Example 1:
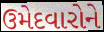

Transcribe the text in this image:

ઉમેદવારોને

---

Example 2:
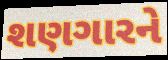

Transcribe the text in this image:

શણગારને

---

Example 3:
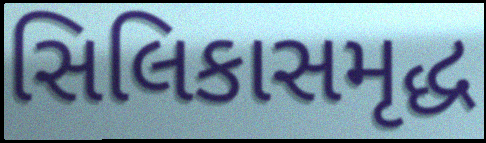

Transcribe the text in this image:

સિલિકાસમૃદ્ધ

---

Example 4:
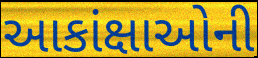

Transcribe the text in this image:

આકાંક્ષાઓની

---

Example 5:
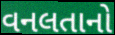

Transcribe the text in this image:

વનલતાનો